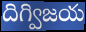
దిగ్విజయ